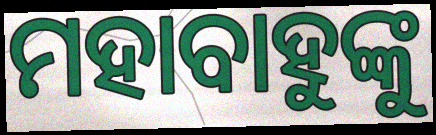
ମହାବାହୁଙ୍କୁ